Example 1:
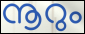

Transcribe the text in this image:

നൂറും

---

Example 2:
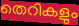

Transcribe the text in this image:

തെറികളും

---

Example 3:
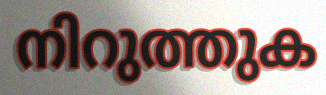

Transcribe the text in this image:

നിറുത്തുക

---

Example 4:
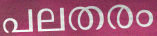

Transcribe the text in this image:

പലതരം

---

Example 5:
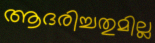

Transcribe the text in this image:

ആദരിച്ചതുമില്ല